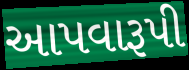
આપવારૂપી